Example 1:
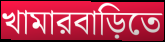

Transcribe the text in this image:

খামারবাড়িতে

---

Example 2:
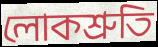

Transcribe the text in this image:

লোকশ্রুতি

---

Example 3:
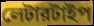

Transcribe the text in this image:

লেটারটাইপ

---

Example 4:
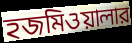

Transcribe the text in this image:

হজমিওয়ালার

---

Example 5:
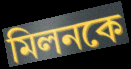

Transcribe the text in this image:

মিলনকে